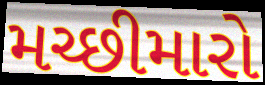
મચ્છીમારો